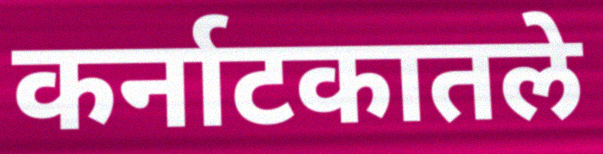
कर्नाटकातले